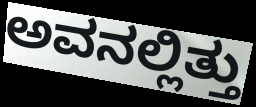
ಅವನಲ್ಲಿತ್ತು